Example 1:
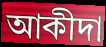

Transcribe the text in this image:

আকীদা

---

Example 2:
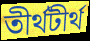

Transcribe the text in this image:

তীর্থটীর্থ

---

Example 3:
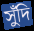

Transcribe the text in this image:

সুঁদি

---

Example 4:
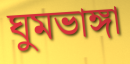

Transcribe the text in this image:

ঘুমভাঙ্গা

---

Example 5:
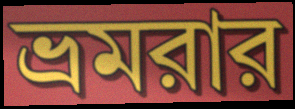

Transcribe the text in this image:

ভ্রমরার